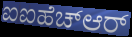
ಐಐಹೆಚ್ಆರ್